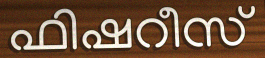
ഫിഷറീസ്